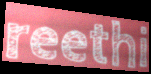
reethi